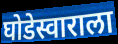
घोडेस्वाराला